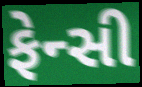
ફેન્સી